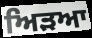
ਅਿੜਆ